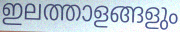
ഇലത്താളങ്ങളും